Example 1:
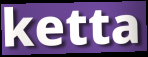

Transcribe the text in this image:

ketta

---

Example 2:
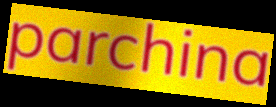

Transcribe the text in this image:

parchina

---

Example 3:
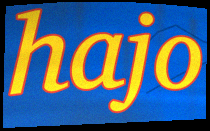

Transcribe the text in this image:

hajo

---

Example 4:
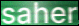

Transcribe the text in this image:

saher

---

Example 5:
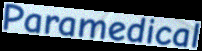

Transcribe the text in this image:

Paramedical